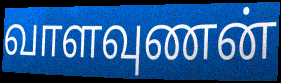
வாளவுணன்